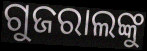
ଗୁଜରାଲଙ୍କୁ